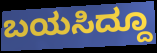
ಬಯಸಿದ್ದೂ